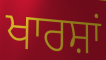
ਖਾਰਸ਼ਾਂ